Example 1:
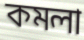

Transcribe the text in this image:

কমলা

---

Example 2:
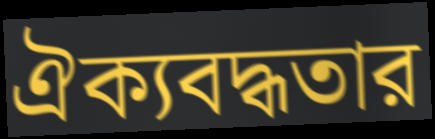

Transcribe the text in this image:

ঐক্যবদ্ধতার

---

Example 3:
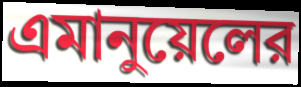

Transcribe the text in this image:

এমানুয়েলের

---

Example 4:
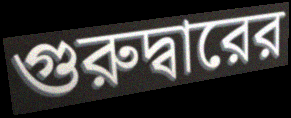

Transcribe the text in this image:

গুরুদ্বারের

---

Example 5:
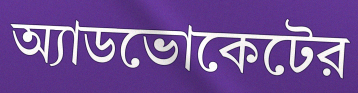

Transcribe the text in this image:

অ্যাডভোকেটের